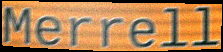
Merrell